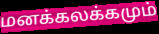
மனக்கலக்கமும்